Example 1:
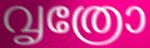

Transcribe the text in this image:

വൃത്രോ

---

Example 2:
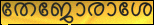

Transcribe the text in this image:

തേജോരാശേ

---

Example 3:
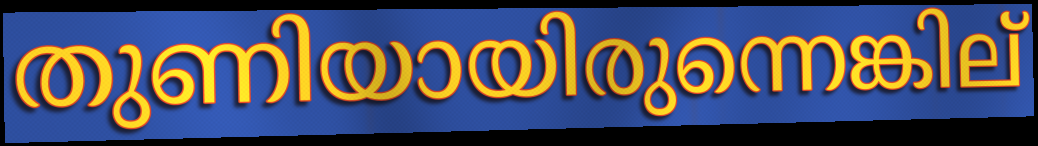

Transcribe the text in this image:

തുണിയായിരുന്നെങ്കില്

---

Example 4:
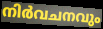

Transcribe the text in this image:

നിർവചനവും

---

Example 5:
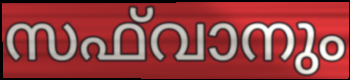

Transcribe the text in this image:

സഫ്‌വാനും